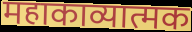
महाकाव्यात्मक